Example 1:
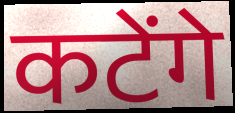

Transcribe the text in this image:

कटेंगे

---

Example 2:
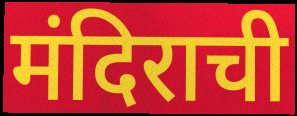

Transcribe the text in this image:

मंदिराची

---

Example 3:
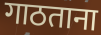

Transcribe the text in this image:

गाठताना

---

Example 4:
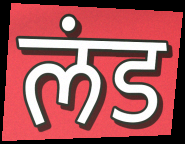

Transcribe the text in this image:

लंड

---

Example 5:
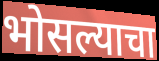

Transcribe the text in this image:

भोसल्याचा